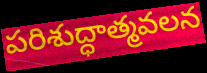
పరిశుద్ధాత్మవలన